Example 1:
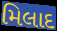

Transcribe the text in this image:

મિલાદ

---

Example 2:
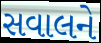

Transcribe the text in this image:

સવાલને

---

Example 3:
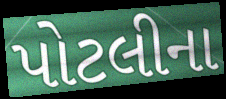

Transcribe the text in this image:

પોટલીના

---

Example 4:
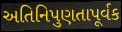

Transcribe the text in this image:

અતિનિપુણતાપૂર્વક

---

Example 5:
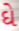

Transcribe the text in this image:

ઘે